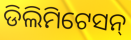
ଡିଲିମିଟେସନ୍